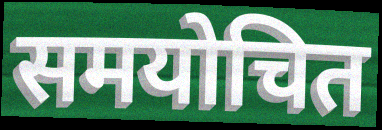
समयोचित